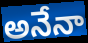
అనేనా